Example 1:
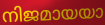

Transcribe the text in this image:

നിജമായയാ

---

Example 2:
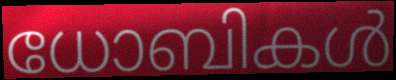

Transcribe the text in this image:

ധോബികൾ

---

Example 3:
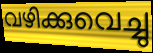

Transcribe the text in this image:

വഴിക്കുവെച്ചു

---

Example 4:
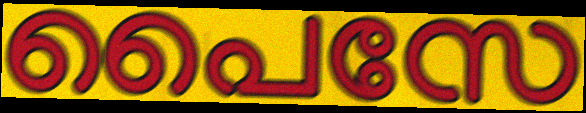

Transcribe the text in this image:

പൈസേ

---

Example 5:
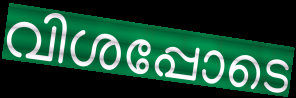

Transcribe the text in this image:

വിശപ്പോടെ